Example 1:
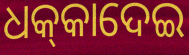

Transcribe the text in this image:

ଧକ୍‌କାଦେଇ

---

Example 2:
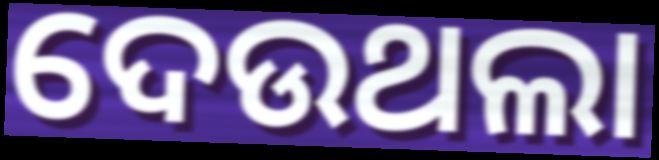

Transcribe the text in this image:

ଦେଉଥଲା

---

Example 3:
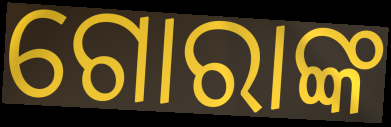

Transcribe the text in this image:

ଗୋରାଙ୍କ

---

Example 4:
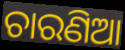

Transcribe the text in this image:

ଚାରଣିଆ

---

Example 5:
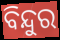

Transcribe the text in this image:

ବିନ୍ଦୁର